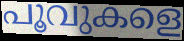
പൂവുകളെ